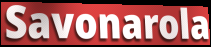
Savonarola